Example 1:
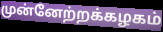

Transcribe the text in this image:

முன்னேற்றக்கழகம்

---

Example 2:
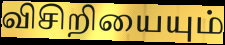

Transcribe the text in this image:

விசிறியையும்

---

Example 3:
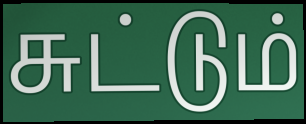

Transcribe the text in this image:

சுட்டும்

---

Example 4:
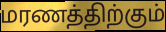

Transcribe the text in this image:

மரணத்திற்கும்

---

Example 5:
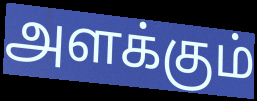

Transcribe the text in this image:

அளக்கும்